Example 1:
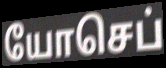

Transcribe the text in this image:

யோசெப்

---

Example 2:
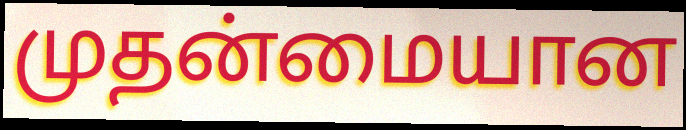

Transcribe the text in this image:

முதன்மையான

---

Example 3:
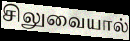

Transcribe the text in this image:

சிலுவையால்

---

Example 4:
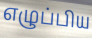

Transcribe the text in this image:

எழுப்பிய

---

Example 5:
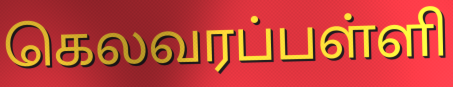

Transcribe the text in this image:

கெலவரப்பள்ளி